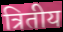
त्रितीय